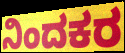
ನಿಂದಕರ